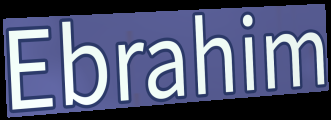
Ebrahim